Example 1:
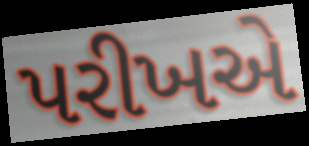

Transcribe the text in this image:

પરીખએ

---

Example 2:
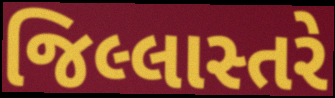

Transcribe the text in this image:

જિલ્લાસ્તરે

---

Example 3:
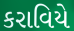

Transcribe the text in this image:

કરાવિયે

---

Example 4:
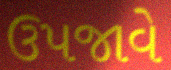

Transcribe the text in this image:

ઉપજાવે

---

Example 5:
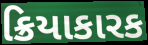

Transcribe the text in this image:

ક્રિયાકારક